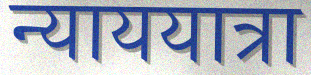
न्याययात्रा